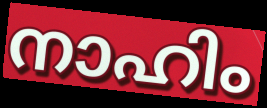
നാഹിം